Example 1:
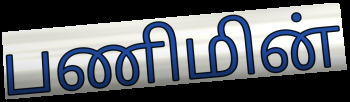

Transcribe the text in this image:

பணிமின்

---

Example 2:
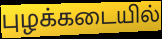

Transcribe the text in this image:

புழக்கடையில்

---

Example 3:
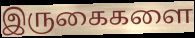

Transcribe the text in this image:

இருகைகளை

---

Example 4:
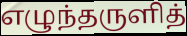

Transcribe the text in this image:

எழுந்தருளித்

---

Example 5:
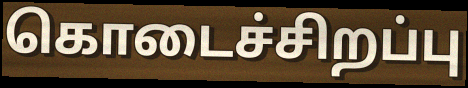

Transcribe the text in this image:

கொடைச்சிறப்பு